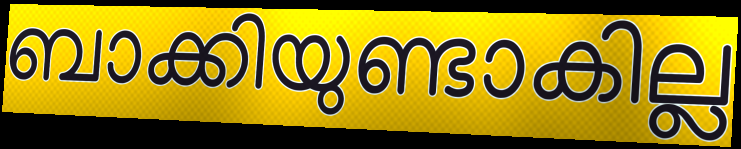
ബാക്കിയുണ്ടാകില്ല